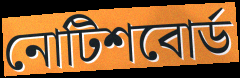
নোটিশবোর্ড